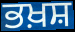
ਭਖ਼ਸ਼